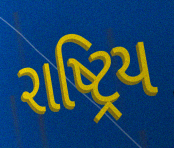
રાષ્ટ્રિય